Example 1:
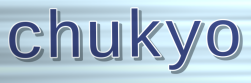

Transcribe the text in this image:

chukyo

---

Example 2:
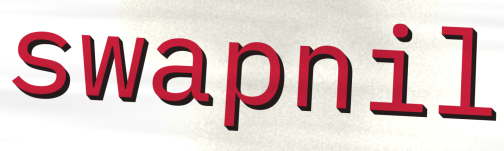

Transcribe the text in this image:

swapnil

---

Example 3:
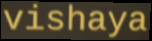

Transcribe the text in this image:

vishaya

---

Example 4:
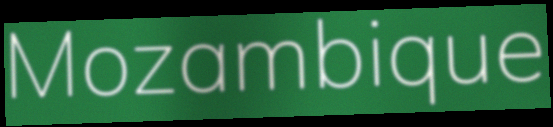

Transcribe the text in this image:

Mozambique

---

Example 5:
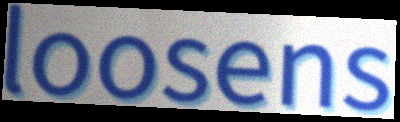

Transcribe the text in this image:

loosens